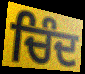
ਚਿੰਦ